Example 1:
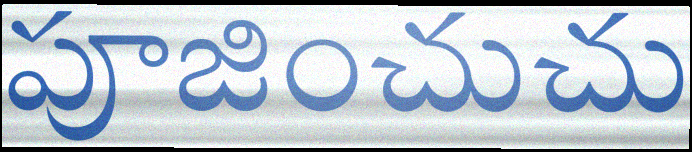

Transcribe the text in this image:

పూజించుచు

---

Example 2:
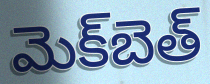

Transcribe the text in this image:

మెక్‌బెత్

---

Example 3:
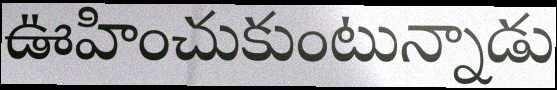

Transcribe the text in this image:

ఊహించుకుంటున్నాడు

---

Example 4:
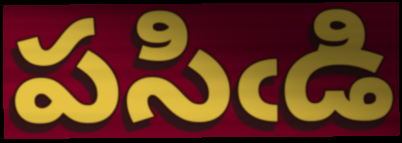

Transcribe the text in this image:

పసిఁడి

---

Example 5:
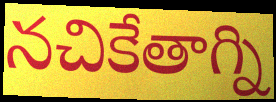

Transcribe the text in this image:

నచికేతాగ్ని